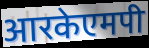
आरकेएमपी